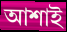
আশাই